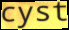
cyst